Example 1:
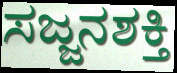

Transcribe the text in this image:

ಸಜ್ಜನಶಕ್ತಿ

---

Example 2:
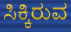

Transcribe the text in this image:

ಸಿಕ್ಕಿರುವ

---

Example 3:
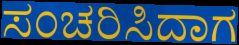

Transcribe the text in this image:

ಸಂಚರಿಸಿದಾಗ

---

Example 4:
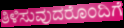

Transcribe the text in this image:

ತಿಳಿಸುವುದರೊಂದಿಗೆ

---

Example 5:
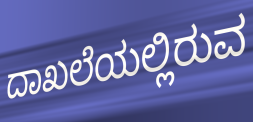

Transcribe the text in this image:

ದಾಖಲೆಯಲ್ಲಿರುವ